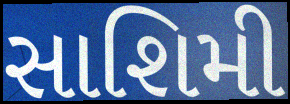
સાશિમી